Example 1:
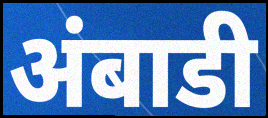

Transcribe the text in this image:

अंबाडी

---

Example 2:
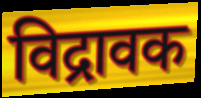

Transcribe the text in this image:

विद्रावक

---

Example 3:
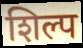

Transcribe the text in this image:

शिल्प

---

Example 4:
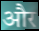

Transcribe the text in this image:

और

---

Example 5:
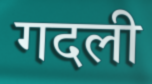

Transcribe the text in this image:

गदली